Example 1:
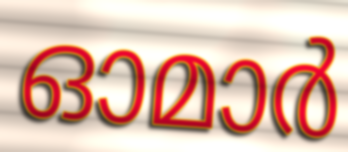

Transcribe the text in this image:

ഓമാർ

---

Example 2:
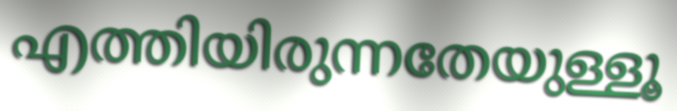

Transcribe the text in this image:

എത്തിയിരുന്നതേയുള്ളൂ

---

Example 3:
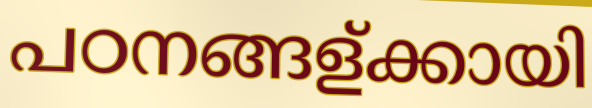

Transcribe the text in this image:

പഠനങ്ങള്ക്കായി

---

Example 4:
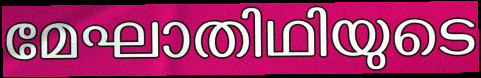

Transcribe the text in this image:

മേഘാതിഥിയുടെ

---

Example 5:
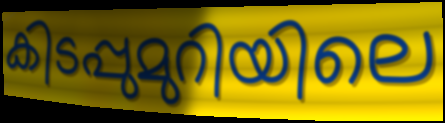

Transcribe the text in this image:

കിടപ്പുമുറിയിലെ